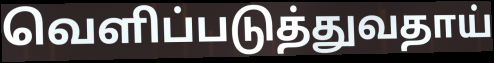
வெளிப்படுத்துவதாய்